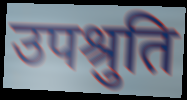
उपश्रुति